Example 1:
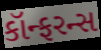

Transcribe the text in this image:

કૉન્ફરન્સ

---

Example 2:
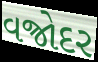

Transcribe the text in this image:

વજ્રોદર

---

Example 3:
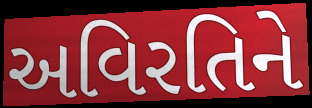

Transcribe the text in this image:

અવિરતિને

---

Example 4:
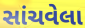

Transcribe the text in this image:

સાંચવેલા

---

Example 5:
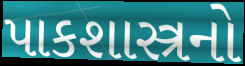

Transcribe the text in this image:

પાકશાસ્ત્રનો